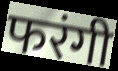
फरंगी